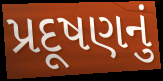
પ્રદૂષણનું